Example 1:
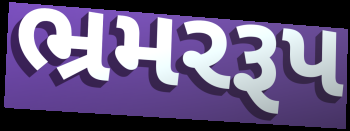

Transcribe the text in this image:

ભ્રમરરૂપ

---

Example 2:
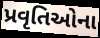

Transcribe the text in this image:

પ્રવૃતિઓના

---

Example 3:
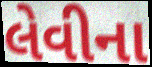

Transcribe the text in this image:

લેવીના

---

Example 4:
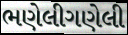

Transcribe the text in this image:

ભણેલીગણેલી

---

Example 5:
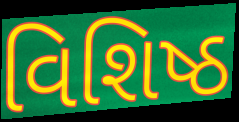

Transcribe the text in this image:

વિશિષ્ઠ